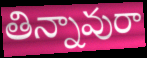
తిన్నావురా